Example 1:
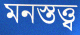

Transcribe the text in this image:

মনস্তত্ত্ব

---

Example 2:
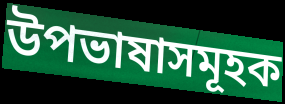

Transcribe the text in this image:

উপভাষাসমূহক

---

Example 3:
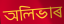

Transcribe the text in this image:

অলিভাৰ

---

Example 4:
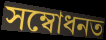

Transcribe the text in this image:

সম্বোধনত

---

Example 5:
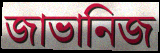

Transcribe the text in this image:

জাভানিজ